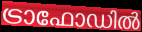
ട്രാഫോഡിൽ